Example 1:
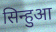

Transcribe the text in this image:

सिन्हुआ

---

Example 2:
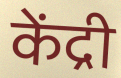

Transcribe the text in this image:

केंद्री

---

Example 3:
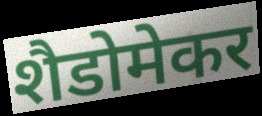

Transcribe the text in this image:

शैडोमेकर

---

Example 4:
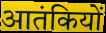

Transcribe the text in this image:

आतंकियों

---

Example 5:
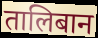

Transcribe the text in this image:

तालिबान